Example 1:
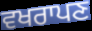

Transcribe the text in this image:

ਵਖਰਾਪਣ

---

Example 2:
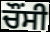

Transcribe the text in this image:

ਚੌਂਸੀ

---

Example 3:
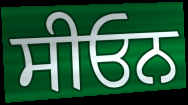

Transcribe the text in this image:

ਸੀਓਨ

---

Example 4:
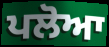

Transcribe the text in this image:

ਪਲੋਆ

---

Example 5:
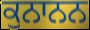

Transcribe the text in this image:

ਕੁਨਾਨਨ